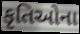
કૃતિઓના